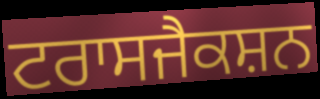
ਟਰਾਸਜੈਕਸ਼ਨ